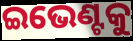
ଇଭେଣ୍ଟକୁ